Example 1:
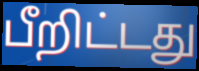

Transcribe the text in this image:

பீறிட்டது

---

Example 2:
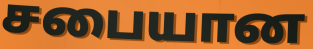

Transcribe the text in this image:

சபையான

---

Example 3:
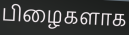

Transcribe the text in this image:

பிழைகளாக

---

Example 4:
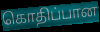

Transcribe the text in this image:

கொதிப்பான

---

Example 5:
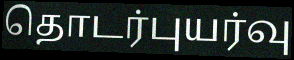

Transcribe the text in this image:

தொடர்புயர்வு